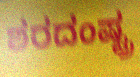
ಶರದಂಷ್ಟ್ರ